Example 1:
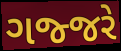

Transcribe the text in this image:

ગજ્જરે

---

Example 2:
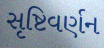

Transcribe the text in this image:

સૃષ્ટિવર્ણન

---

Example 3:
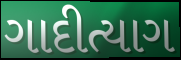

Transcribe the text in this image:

ગાદીત્યાગ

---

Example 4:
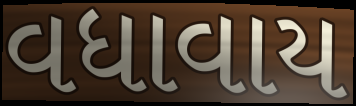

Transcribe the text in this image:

વધાવાય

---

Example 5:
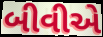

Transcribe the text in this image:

બીવીએ